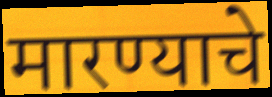
मारण्याचे